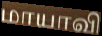
மாயாவி